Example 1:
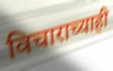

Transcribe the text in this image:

विचाराच्याही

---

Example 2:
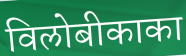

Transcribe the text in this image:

विलोबीकाका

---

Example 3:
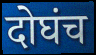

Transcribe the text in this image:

दोघंच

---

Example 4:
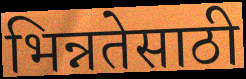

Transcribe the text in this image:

भिन्नतेसाठी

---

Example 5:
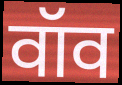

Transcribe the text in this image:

वॉव